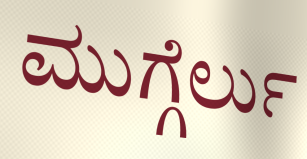
ಮುಗ್ಗೆರ್ಲು